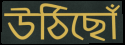
উঠিছোঁ